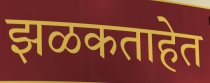
झळकताहेत